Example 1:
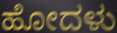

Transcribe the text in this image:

ಹೋದಳು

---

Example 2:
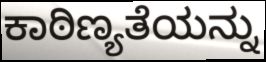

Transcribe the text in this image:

ಕಾಠಿಣ್ಯತೆಯನ್ನು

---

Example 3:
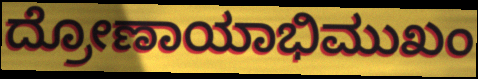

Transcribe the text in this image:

ದ್ರೋಣಾಯಾಭಿಮುಖಂ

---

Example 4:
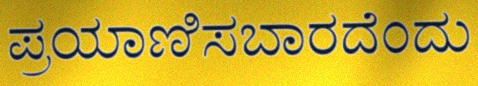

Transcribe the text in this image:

ಪ್ರಯಾಣಿಸಬಾರದೆಂದು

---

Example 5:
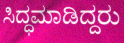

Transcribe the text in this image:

ಸಿದ್ಧಮಾಡಿದ್ದರು